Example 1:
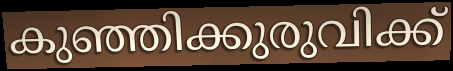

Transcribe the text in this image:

കുഞ്ഞിക്കുരുവിക്ക്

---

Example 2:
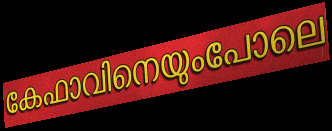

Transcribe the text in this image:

കേഫാവിനെയുംപോലെ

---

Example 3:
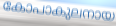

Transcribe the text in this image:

കോപാകുലനായ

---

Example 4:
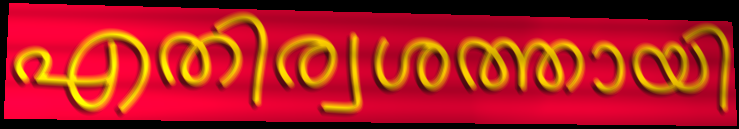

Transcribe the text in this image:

എതിര്വശത്തായി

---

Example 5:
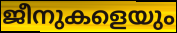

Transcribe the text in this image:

ജീനുകളെയും